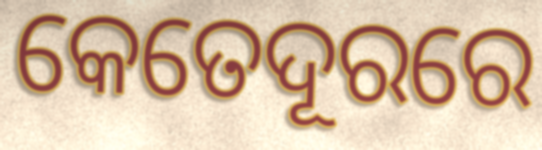
କେତେଦୂରରେ